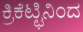
ಕ್ರಿಕೆಟ್ಟಿನಿಂದ